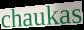
chaukas